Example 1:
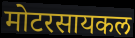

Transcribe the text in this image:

मोटरसायकल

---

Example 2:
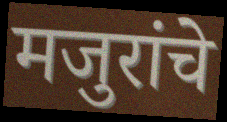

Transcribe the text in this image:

मजुरांचे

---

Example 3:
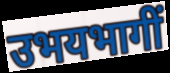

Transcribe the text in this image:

उभयभागीं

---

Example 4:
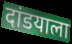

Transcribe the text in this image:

दांडयाला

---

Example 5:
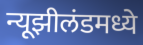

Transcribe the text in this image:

न्यूझीलंडमध्ये